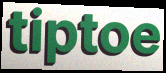
tiptoe